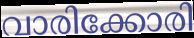
വാരിക്കോരി